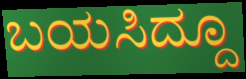
ಬಯಸಿದ್ದೂ